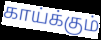
காய்க்கும்